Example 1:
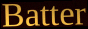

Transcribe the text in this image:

Batter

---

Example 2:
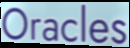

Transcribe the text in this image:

Oracles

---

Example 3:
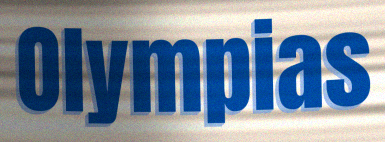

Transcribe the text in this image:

Olympias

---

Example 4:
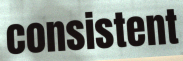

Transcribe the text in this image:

consistent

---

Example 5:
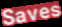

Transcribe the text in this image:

Saves